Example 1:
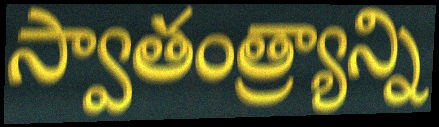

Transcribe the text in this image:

స్వాతంత్ర్యాన్ని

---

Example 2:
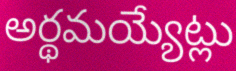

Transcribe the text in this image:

అర్థమయ్యేట్లు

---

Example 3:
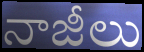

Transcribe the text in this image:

నాజీలు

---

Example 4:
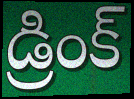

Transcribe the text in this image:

డ్రింక్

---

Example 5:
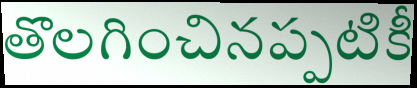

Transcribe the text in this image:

తొలగించినప్పటికీ